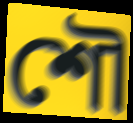
শৌ